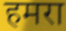
हमरा